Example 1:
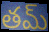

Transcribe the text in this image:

తమ్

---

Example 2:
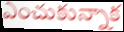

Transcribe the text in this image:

ఎంచుకున్నాక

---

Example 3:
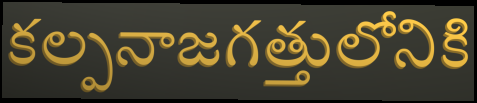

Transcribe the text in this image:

కల్పనాజగత్తులోనికి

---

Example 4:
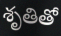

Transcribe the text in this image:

శృతితో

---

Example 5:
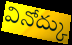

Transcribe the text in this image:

వినోద్కు